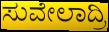
ಸುವೇಲಾದ್ರಿ